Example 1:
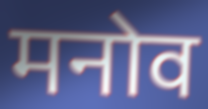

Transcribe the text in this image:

मनोव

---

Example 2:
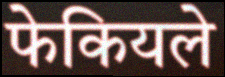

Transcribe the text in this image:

फेकियले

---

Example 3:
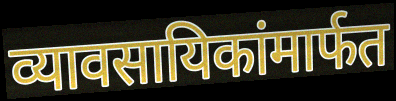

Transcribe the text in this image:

व्यावसायिकांमार्फत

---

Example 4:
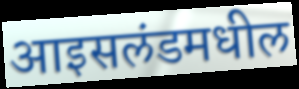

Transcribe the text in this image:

आइसलंडमधील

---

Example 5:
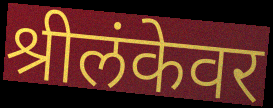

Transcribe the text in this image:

श्रीलंकेवर